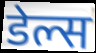
डेल्स